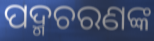
ପଦ୍ମଚରଣଙ୍କ